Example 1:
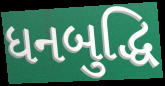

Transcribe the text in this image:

ધનબુદ્ધિ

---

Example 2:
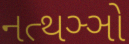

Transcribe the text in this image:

નત્થઞ્ઞો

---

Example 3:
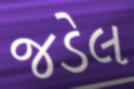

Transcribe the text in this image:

જડેલ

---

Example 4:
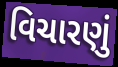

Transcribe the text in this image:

વિચારણું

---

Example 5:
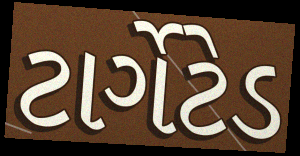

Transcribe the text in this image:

ટાર્ગેટેડ